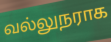
வல்லுநராக